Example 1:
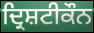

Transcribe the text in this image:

ਦ੍ਰਿਸ਼ਟੀਕੌਨ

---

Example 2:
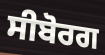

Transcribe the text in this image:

ਸੀਬੋਰਗ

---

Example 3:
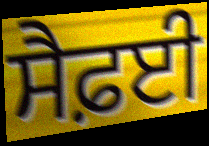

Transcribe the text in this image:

ਸੈਫ਼ਈ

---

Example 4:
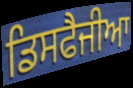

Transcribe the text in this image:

ਡਿਸਫੈਜੀਆ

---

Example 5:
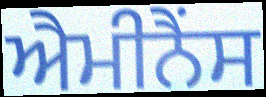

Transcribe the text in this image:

ਐਮੀਨੈਂਸ